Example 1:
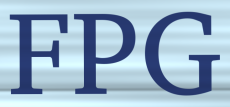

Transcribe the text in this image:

FPG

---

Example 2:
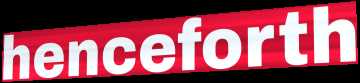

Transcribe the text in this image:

henceforth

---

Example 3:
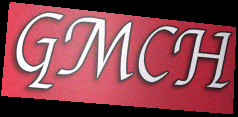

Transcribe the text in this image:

GMCH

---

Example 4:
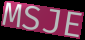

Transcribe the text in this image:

MSJE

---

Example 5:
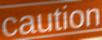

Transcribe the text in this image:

caution